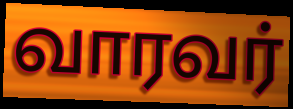
வாரவர்